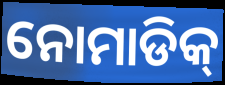
ନୋମାଡିକ୍